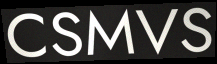
CSMVS